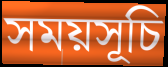
সময়সূচি